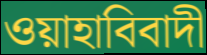
ওয়াহাবিবাদী